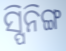
ସ୍ପିନିଙ୍ଗ